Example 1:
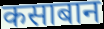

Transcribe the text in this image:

कसाबान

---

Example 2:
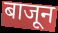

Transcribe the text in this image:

बाजून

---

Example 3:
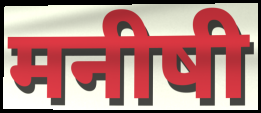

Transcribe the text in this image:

मनीषी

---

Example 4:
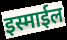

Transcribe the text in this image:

इस्माईल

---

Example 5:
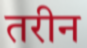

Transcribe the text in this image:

तरीन